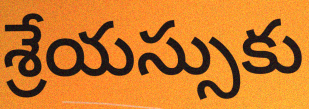
శ్రేయస్సుకు